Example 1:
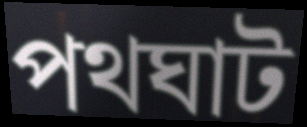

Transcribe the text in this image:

পথঘাট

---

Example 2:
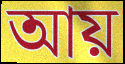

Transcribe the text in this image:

আয়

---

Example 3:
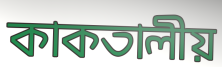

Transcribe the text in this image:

কাকতালীয়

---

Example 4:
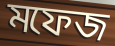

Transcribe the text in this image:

মফেজ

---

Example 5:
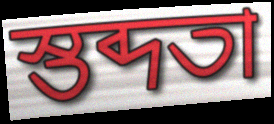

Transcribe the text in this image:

স্তব্দতা